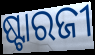
ଷ୍ଟାରଜୀ